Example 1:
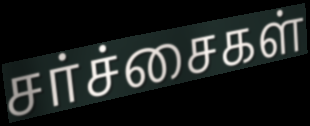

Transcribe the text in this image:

சர்ச்சைகள்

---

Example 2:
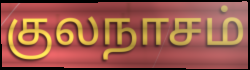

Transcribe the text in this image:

குலநாசம்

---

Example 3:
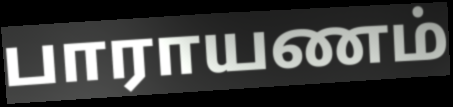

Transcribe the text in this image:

பாராயணம்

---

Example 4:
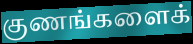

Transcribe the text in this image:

குணங்களைக்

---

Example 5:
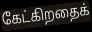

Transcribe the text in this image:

கேட்கிறதைக்